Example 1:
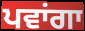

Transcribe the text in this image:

ਪਵਾਂਗਾ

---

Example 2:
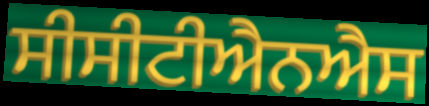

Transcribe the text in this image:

ਸੀਸੀਟੀਐਨਐਸ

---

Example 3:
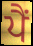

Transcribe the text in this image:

ਪੈਂ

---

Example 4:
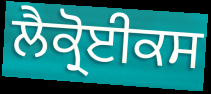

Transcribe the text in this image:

ਲੈਕ੍ਰੋਈਕਸ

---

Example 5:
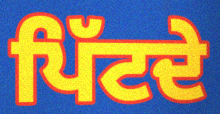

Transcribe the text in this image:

ਪਿੱਟਦੇ